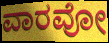
ವಾರವೋ